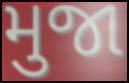
મુજા